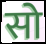
सो